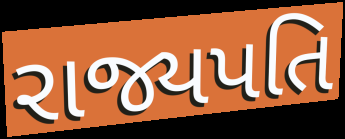
રાજ્યપતિ